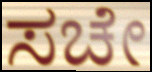
ಸಚೇ